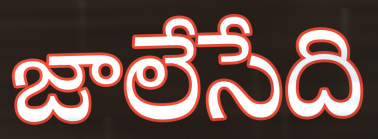
జాలేసేది